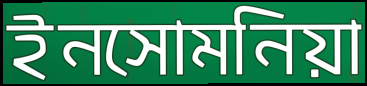
ইনসোমনিয়া